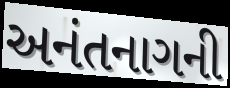
અનંતનાગની